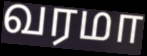
வரமா